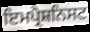
ਇਮਪ੍ਰੈਸ਼ਨਿਸਟ